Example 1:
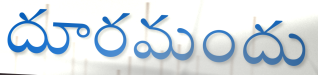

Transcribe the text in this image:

దూరమందు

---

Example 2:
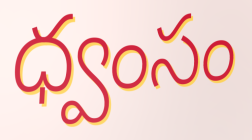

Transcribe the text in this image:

ధ్వంసం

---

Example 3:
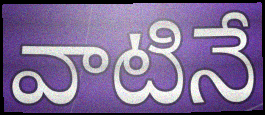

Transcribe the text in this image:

వాటినే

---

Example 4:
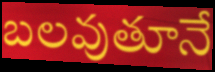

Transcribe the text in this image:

బలవుతూనే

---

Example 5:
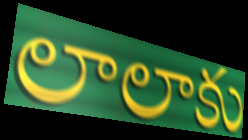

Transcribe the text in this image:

లాలాకు